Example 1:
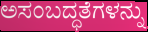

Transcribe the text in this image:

ಅಸಂಬದ್ಧತೆಗಳನ್ನು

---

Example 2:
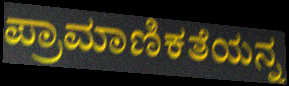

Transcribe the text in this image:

ಪ್ರಾಮಾಣಿಕತೆಯನ್ನ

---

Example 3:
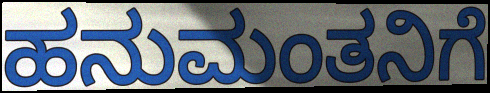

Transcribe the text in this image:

ಹನುಮಂತನಿಗೆ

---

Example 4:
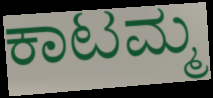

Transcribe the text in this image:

ಕಾಟಮ್ಮ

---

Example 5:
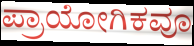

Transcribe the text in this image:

ಪ್ರಾಯೋಗಿಕವೂ